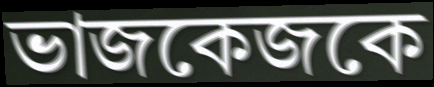
ভাজকেজকে